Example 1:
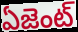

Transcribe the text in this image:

ఏజెంట్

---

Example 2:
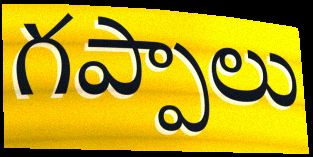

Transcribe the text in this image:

గప్పాలు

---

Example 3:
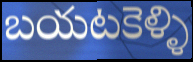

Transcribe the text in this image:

బయటకెళ్ళి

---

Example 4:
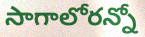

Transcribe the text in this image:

సాగాలోరన్నో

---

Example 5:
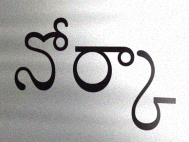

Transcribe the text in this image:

నోర్కా